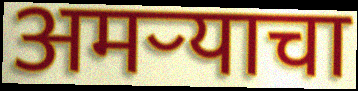
अमऱ्याचा